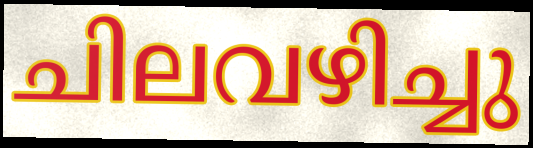
ചിലവഴിച്ചു